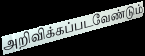
அறிவிக்கப்படவேண்டும்